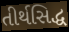
તીર્થસિદ્ધ